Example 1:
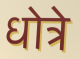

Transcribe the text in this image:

धोत्रे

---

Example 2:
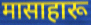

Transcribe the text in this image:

मासाहारू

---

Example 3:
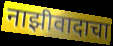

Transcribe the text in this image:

नाझीवादाचा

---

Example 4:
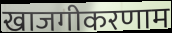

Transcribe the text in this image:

खाजगीकरणाम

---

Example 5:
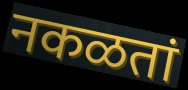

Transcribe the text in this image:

नकळतां